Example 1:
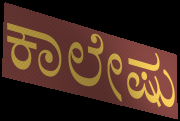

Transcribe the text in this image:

ಕಾಲೇಷು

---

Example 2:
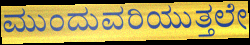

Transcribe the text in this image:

ಮುಂದುವರಿಯುತ್ತಲೇ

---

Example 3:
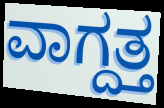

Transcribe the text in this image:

ವಾಗ್ದತ್ತ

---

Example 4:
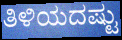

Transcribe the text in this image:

ತಿಳಿಯದಷ್ಟು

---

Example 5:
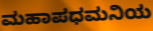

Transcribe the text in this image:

ಮಹಾಪಧಮನಿಯ